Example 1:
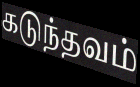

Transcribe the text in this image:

கடுந்தவம்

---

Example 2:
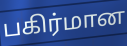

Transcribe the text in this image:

பகிர்மான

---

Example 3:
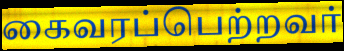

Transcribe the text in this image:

கைவரப்பெற்றவர்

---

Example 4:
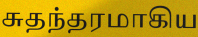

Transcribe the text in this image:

சுதந்தரமாகிய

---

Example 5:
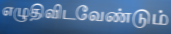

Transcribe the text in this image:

எழுதிவிடவேண்டும்